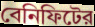
বেনিফিটের